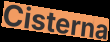
Cisterna